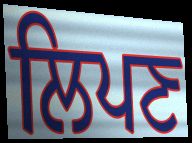
ਲਿਪਣ